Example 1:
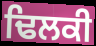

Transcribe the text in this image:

ਢਿਲਕੀ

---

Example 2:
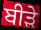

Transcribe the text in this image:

ਬੀੜੇ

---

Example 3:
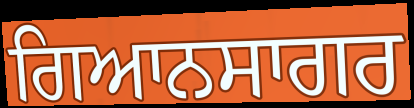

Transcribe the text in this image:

ਗਿਆਨਸਾਗਰ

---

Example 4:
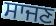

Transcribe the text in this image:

ਸਾਜਣ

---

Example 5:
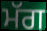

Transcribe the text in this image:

ਮੱਗ